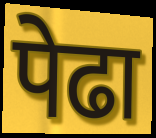
पेढा